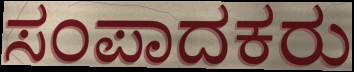
ಸಂಪಾದಕರು